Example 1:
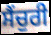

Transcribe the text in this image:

ਸੈਂਚੁਰੀ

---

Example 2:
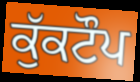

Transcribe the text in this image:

ਕੁੱਕਟੌਪ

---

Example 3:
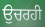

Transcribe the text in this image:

ਉਚਰਹੀ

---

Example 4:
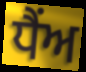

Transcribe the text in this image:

ਧੈਂਅ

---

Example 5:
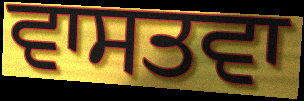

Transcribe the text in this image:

ਵਾਸਤਵਾ